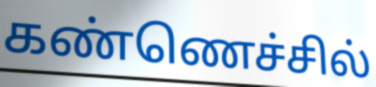
கண்ணெச்சில்